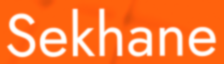
Sekhane